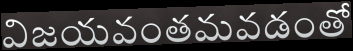
విజయవంతమవడంతో